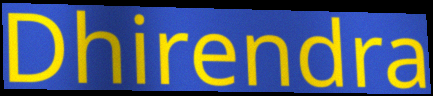
Dhirendra